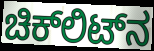
ಚಿಕ್‌ಲಿಟ್‌ನ